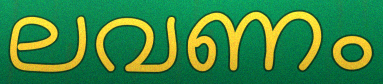
ലവണം